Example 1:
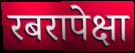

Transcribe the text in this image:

रबरापेक्षा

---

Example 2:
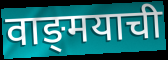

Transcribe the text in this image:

वाङ्मयाची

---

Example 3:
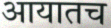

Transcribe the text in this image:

आयातच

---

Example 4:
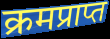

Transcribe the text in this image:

क्रमप्राप्‍त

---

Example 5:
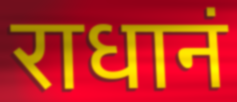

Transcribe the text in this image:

राधानं